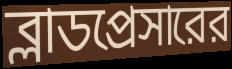
ব্লাডপ্রেসারের